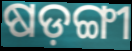
ଷଡ଼ଙ୍ଗୀ